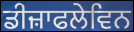
ਡੀਜ਼ਾਫਲੇਵਿਨ